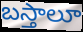
బస్తాలూ